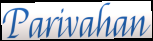
Parivahan